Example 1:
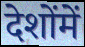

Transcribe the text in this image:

देशोंमें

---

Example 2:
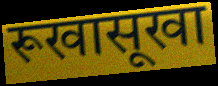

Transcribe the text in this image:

रूखासूखा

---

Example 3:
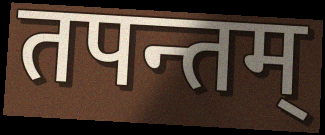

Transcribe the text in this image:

तपन्तम्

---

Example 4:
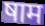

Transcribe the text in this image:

षाम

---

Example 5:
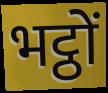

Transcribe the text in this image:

भट्ठों